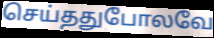
செய்ததுபோலவே